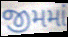
જીમમાં